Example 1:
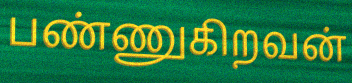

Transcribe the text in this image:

பண்ணுகிறவன்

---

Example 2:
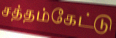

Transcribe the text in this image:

சத்தம்கேட்டு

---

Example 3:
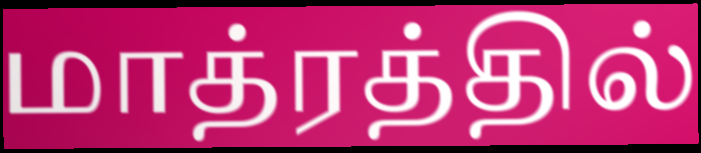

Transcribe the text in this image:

மாத்ரத்தில்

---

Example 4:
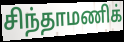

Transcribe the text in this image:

சிந்தாமணிக்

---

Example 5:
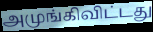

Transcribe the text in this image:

அமுங்கிவிட்டது